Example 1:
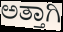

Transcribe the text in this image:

ಅತ್ತಾಗಿ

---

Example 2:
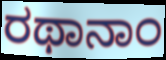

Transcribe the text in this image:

ರಥಾನಾಂ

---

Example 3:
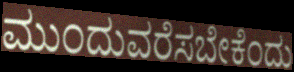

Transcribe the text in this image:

ಮುಂದುವರೆಸಬೇಕೆಂದು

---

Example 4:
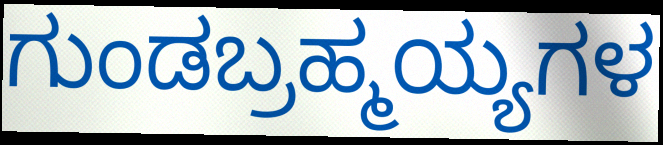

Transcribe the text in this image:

ಗುಂಡಬ್ರಹ್ಮಯ್ಯಗಳ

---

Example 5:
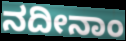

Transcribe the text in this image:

ನದೀನಾಂ